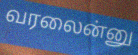
வரலைன்னு